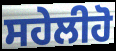
ਸਹੇਲੀਹੋ